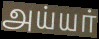
அய்யர்